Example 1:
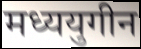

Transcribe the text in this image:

मध्ययुगीन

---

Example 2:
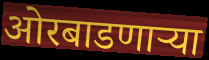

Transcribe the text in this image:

ओरबाडणाऱ्या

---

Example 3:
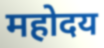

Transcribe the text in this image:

महोदय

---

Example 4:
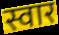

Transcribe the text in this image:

स्वार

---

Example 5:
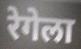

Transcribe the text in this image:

रेगेला